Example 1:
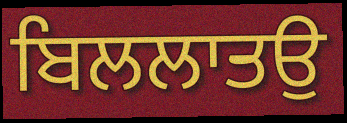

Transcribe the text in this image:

ਬਿਲਲਾਤਉ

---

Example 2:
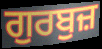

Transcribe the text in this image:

ਗੁਰਬੁਜ਼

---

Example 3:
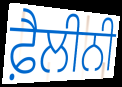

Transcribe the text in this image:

ਫ਼ੈਲੀਨੀ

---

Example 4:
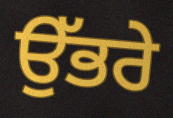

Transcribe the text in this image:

ਉੱਭਰੇ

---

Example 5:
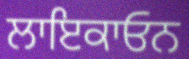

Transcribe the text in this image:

ਲਾਇਕਾਓਨ